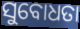
ସୁବୋଧତା